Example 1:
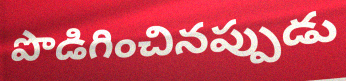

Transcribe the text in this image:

పొడిగించినప్పుడు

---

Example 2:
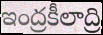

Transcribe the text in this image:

ఇంద్రకీలాద్రి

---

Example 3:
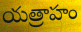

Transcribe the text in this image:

యత్రాహం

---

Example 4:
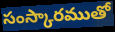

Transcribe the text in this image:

సంస్కారముతో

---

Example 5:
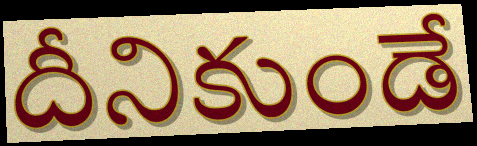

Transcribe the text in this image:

దీనికుండే